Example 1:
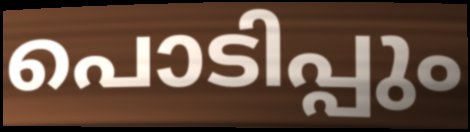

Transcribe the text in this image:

പൊടിപ്പും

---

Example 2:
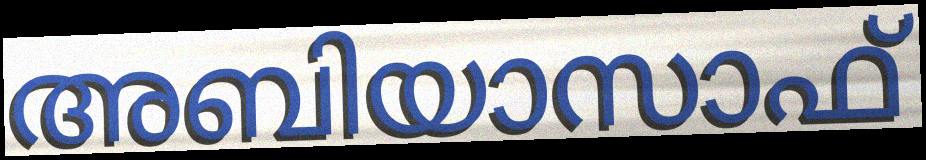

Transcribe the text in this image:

അബിയാസാഫ്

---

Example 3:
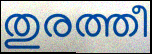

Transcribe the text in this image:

തുരത്തീ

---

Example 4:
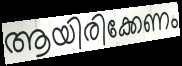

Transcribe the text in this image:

ആയിരിക്കേണം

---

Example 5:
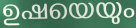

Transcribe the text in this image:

ഉഷയെയും